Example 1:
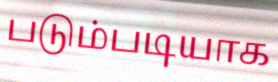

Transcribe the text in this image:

படும்படியாக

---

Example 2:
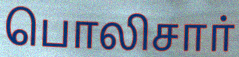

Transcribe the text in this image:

பொலிசார்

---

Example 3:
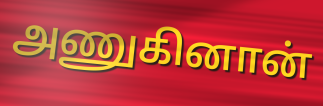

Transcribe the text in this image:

அணுகினான்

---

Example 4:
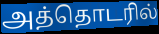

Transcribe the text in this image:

அத்தொடரில்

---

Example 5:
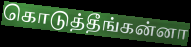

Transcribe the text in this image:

கொடுத்தீங்கன்னா